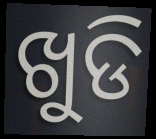
ଖୁଡି